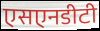
एसएनडीटी